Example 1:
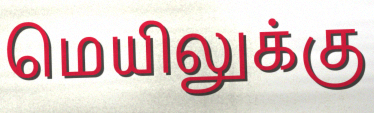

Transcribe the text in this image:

மெயிலுக்கு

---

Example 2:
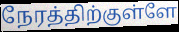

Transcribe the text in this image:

நேரத்திற்குள்ளே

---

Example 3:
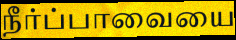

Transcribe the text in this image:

நீர்ப்பாவையை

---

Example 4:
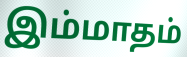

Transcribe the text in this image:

இம்மாதம்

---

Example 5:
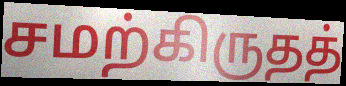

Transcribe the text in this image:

சமற்கிருதத்